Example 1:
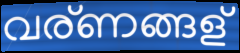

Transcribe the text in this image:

വര്ണങ്ങള്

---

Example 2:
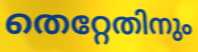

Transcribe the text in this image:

തെറ്റേതിനും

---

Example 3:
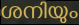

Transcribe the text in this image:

ശനിയും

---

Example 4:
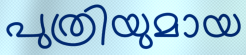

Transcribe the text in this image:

പുത്രിയുമായ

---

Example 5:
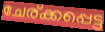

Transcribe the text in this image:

ചേര്ക്കപ്പെട്ട